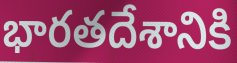
భారతదేశానికి